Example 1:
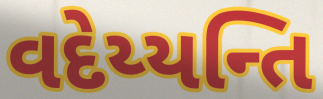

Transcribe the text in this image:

વદેય્યન્તિ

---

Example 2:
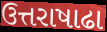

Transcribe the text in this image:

ઉત્તરાષાઢા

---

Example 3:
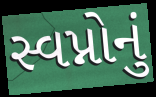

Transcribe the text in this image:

સ્વપ્નોનું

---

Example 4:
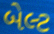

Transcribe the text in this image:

બેલ્ટ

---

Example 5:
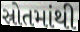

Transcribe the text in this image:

સ્રોતમાંથી